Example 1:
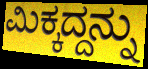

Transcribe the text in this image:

ಮಿಕ್ಕದ್ದನ್ನು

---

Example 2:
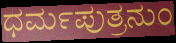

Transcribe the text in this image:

ಧರ್ಮಪುತ್ರನುಂ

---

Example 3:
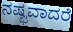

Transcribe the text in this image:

ನಷ್ಟವಾದರೆ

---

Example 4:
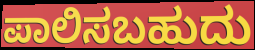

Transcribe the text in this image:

ಪಾಲಿಸಬಹುದು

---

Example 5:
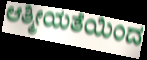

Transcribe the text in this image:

ಆತ್ಮೀಯತೆಯಿಂದ